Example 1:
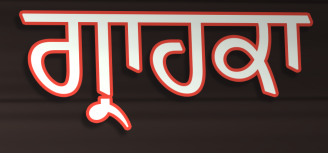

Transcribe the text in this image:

ਗ੍ਰਾਹਕਾ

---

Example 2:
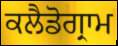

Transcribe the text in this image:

ਕਲੈਡੋਗ੍ਰਾਮ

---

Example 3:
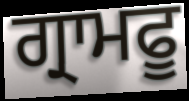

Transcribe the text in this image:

ਗ੍ਰਾਮਫੂ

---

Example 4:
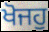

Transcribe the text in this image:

ਖੋਜਹੁ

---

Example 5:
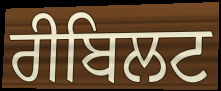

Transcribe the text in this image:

ਰੀਬਿਲਟ